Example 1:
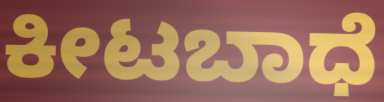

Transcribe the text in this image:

ಕೀಟಬಾಧೆ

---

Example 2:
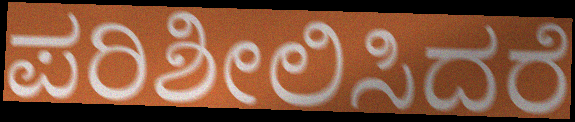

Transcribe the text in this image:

ಪರಿಶೀಲಿಸಿದರೆ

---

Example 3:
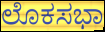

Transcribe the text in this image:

ಲೊಕಸಭಾ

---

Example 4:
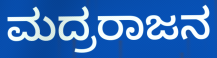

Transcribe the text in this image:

ಮದ್ರರಾಜನ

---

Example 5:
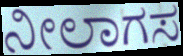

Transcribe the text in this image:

ನೀಲಾಗಸ